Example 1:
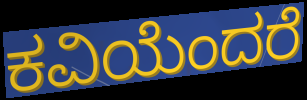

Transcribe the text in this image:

ಕವಿಯೆಂದರೆ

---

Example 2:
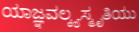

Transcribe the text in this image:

ಯಾಜ್ಞವಲ್ಕ್ಯಸ್ಮೃತಿಯು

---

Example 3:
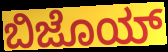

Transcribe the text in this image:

ಬಿಜೊಯ್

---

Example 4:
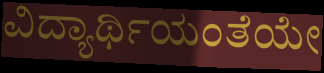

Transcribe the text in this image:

ವಿದ್ಯಾರ್ಥಿಯಂತೆಯೇ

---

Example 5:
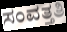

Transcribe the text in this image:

ಸಂವತ್ತತಿ